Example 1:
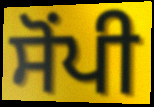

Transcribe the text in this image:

ਸੋੰਪੀ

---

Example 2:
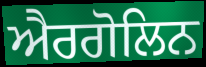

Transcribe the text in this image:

ਐਰਗੋਲਿਨ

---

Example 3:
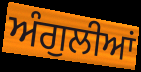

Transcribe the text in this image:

ਅੰਗੁਲੀਆਂ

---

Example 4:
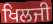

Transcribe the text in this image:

ਖਿਲਜੀ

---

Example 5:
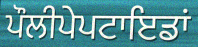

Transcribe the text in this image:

ਪੌਲੀਪੇਪਟਾਇਡਾਂ